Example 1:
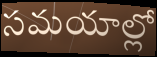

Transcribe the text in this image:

సమయాల్లో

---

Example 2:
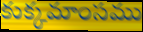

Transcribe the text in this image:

కుక్కమాంసము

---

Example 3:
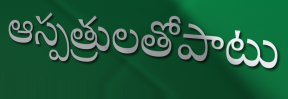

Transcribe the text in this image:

ఆస్పత్రులతోపాటు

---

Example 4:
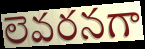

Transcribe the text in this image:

లెవరనగా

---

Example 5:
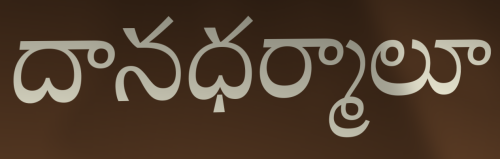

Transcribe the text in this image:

దానధర్మాలూ